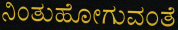
ನಿಂತುಹೋಗುವಂತೆ